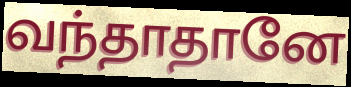
வந்தாதானே